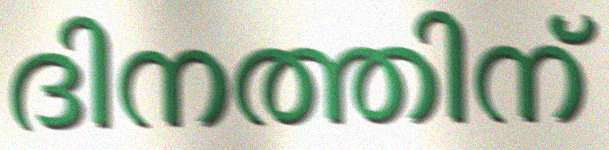
ദിനത്തിന്